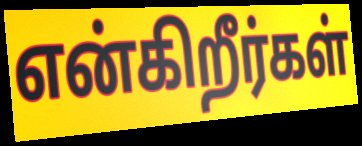
என்கிறீர்கள்